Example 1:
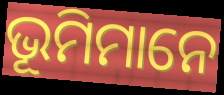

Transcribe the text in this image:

ଭୂମିମାନେ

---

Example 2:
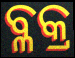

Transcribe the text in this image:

ବ୍ଳକ୍ର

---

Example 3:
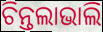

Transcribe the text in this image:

ଚିନ୍ତଲାଭାଲି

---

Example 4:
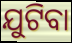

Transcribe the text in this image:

ଯୁଟିବା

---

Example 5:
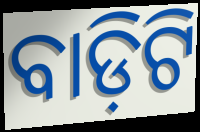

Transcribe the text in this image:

ବାଡ଼ିଟି